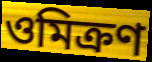
ওমিক্রণ